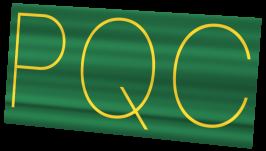
PQC